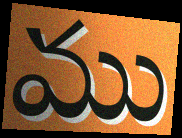
ము